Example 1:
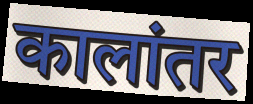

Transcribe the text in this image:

कालांतर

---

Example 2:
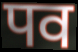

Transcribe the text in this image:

पव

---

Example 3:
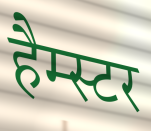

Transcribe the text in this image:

हैम्स्टर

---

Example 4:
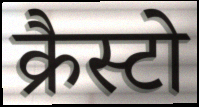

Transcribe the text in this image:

क्रैस्टो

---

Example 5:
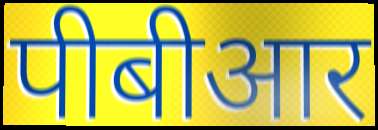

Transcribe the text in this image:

पीबीआर